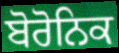
ਬੋਰੋਨਿਕ